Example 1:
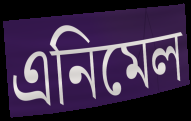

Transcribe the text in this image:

এনিমেল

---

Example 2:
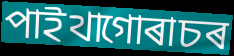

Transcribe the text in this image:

পাইথাগোৰাচৰ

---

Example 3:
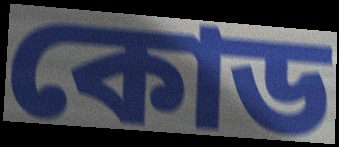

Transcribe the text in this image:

কোড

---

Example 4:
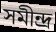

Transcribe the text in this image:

সমীন্দ্ৰ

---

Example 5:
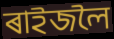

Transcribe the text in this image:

ৰাইজলৈ